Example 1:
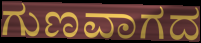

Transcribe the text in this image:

ಗುಣವಾಗದ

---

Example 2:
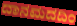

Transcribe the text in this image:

ದಾನಮದದಿಂ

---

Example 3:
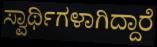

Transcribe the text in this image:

ಸ್ವಾರ್ಥಿಗಳಾಗಿದ್ದಾರೆ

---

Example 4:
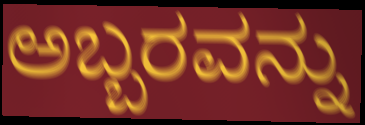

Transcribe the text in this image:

ಅಬ್ಬರವನ್ನು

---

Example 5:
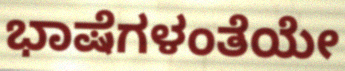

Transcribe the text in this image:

ಭಾಷೆಗಳಂತೆಯೇ